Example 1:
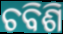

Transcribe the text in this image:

ଚବିଶି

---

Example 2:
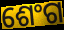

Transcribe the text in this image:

ଶେଂଗ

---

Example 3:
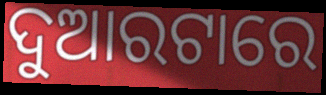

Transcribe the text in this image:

ଦୁଆରଟାରେ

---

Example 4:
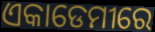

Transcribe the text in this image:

ଏକାଡେମୀରେ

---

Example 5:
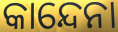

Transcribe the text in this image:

କାନ୍ଦେନା